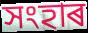
সংহাৰ